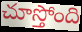
చూస్తోంది